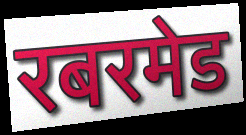
रबरमेड